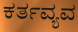
ಕರ್ತವ್ಯವ